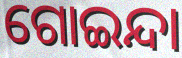
ଗୋଇନ୍ଦା